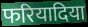
फरियादिया